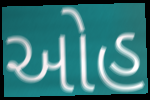
ઓહ